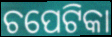
ଚପେଟିକା